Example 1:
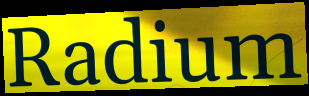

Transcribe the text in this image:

Radium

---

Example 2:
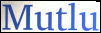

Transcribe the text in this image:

Mutlu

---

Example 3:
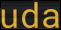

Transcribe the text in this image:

uda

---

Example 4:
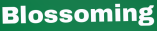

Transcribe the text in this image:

Blossoming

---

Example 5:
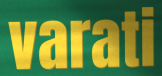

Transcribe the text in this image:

varati